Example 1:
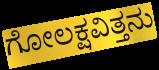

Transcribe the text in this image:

ಗೋಲಕ್ಷವಿತ್ತನು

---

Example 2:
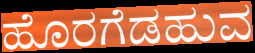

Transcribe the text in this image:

ಹೊರಗೆಡಹುವ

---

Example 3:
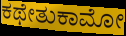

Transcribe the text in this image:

ಕಥೇತುಕಾಮೋ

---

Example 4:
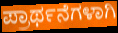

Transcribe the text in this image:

ಪ್ರಾರ್ಥನೆಗಳಾಗಿ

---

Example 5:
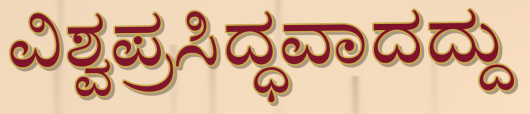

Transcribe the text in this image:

ವಿಶ್ವಪ್ರಸಿದ್ಧವಾದದ್ದು